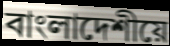
বাংলাদেশীয়ে